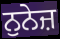
ਨੁਨੇਜ਼